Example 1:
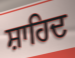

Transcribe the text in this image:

ਸ਼ਾਹਿਦ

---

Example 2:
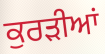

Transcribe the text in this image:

ਕੁਰੜੀਆਂ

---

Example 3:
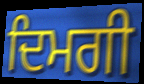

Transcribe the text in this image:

ਦਿਮਗੀ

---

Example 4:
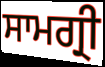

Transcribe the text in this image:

ਸਾਮਗ੍ਰੀ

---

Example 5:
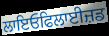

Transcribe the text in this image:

ਲਾਇਓਫਿਲਾਈਜ਼ਡ